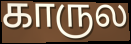
காருல